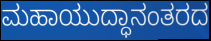
ಮಹಾಯುದ್ಧಾನಂತರದ